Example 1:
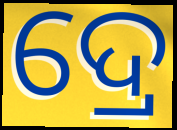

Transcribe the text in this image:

ଦ୍ରେ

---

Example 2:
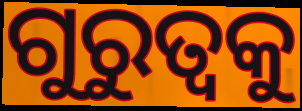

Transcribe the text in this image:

ଗୁରୁତ୍ବକୁ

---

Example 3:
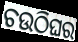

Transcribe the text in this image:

ଚଉଠିଘର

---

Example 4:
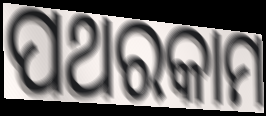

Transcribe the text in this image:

ପଥରକାମ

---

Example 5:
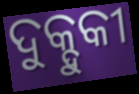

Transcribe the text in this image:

ଦୁକ୍ଦୁକୀ